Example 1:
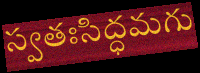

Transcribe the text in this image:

స్వతఃసిద్ధమగు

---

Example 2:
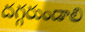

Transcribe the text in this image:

దగ్గరుండాలి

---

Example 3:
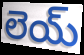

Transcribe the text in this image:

లెయ్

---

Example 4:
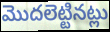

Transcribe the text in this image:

మొదలెట్టినట్లు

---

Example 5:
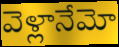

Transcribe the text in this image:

వెళ్లానేమో